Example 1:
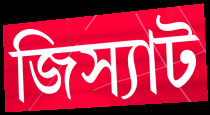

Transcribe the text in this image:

জিস্যাট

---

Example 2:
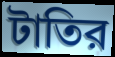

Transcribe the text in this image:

টাতির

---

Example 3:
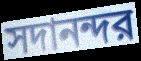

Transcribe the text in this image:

সদানন্দর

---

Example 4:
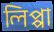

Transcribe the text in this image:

লিপ্পা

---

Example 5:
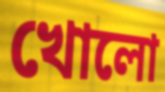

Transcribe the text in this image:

খোলো